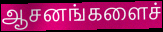
ஆசனங்களைச்